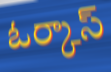
ఓర్కాస్